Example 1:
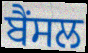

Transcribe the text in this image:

ਬੈਂਸਲ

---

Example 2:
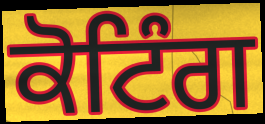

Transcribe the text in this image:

ਕੋਟਿੰਗ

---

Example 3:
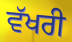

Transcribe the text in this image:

ਵੱਖਰੀ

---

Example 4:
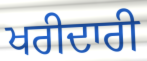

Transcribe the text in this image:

ਖਰੀਦਾਰੀ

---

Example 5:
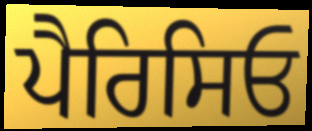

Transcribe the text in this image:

ਪੈਰਿਸਿਓ